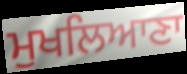
ਮੁਖਲਿਆਣਾ